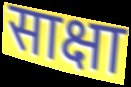
साक्षा